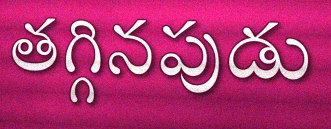
తగ్గినపుడు